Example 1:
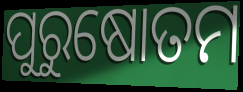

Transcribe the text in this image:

ପୁରୁଷୋତମ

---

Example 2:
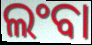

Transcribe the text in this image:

ଲଂବା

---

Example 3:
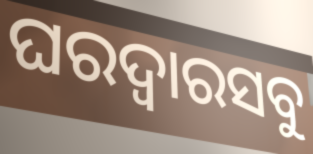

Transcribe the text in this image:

ଘରଦ୍ୱାରସବୁ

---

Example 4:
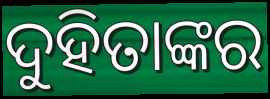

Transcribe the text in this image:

ଦୁହିତାଙ୍କର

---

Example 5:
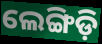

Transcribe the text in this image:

ଲେଙ୍ଗିଡ଼ି